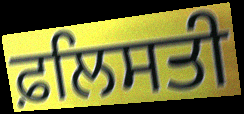
ਫ਼ਲਿਸਤੀ